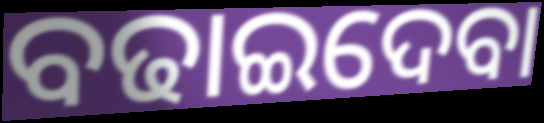
ବଢାଇଦେବା